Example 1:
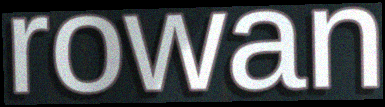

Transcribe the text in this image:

rowan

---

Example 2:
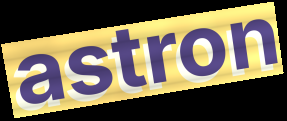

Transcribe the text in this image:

astron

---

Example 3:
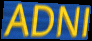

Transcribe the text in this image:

ADNI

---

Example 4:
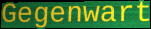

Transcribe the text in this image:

Gegenwart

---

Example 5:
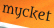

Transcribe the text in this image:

mycket